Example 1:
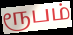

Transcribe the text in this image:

ரூபம்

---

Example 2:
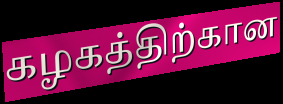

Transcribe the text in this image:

கழகத்திற்கான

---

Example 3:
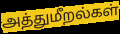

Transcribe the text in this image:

அத்துமீறல்கள்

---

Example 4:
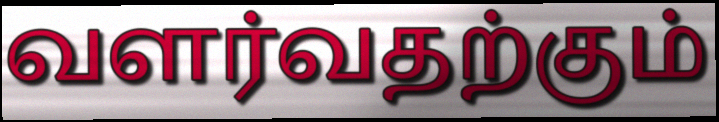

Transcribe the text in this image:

வளர்வதற்கும்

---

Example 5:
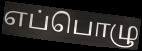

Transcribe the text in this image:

எப்பொழு